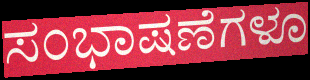
ಸಂಭಾಷಣೆಗಳೂ